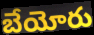
బేయోరు